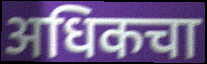
अधिकचा